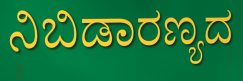
ನಿಬಿಡಾರಣ್ಯದ